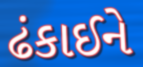
ઢંકાઈને